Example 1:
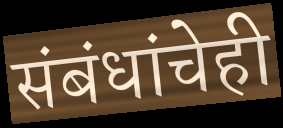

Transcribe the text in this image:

संबंधांचेही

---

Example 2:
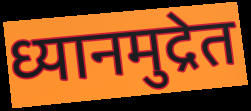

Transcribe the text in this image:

ध्यानमुद्रेत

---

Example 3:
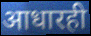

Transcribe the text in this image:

आधारही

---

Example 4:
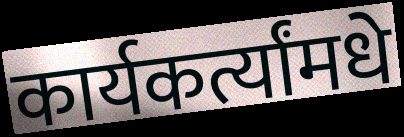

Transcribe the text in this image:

कार्यकर्त्यांमधे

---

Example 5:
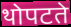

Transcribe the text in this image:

थोपटते